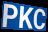
PKC